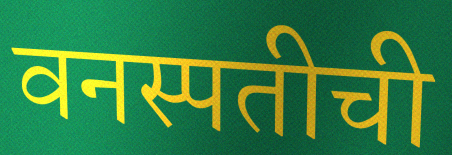
वनस्पतीची